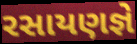
રસાયણજ્ઞે